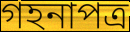
গহনাপত্র